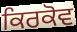
ਕਿਰਕੋਵ